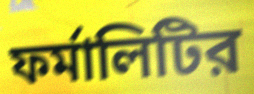
ফর্মালিটির